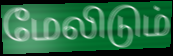
மேலிடும்